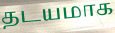
தடயமாக